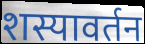
शस्यावर्तन